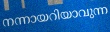
നന്നായറിയാവുന്ന